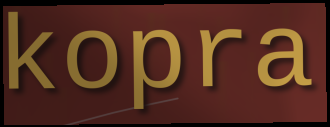
kopra